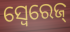
ସ୍ୱେରେଜ୍